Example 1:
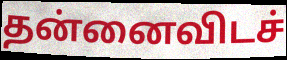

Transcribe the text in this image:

தன்னைவிடச்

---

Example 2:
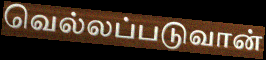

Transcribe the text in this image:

வெல்லப்படுவான்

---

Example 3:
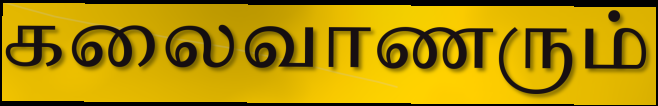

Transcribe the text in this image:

கலைவாணரும்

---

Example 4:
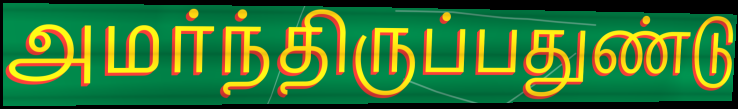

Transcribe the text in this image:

அமர்ந்திருப்பதுண்டு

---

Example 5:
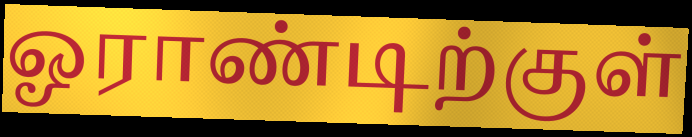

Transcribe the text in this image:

ஓராண்டிற்குள்